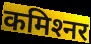
कमिश्‍नर